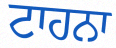
ਟਾਹਨਾ